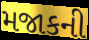
મજાકની